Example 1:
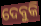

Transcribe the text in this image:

ଦେବୁକି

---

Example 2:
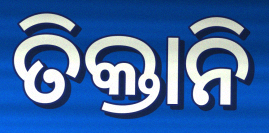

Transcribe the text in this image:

ତିକ୍ତାନି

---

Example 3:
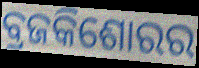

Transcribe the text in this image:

ବ୍ରଜକିଶୋରର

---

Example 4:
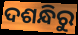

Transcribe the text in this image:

ଦଶନ୍ଧିରୁ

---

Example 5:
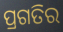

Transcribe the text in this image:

ପ୍ରଗତିର